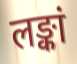
लङ्कां